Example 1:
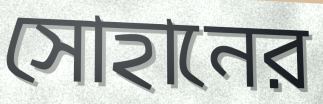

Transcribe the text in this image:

সোহানের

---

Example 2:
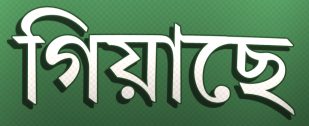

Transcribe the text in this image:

গিয়াছে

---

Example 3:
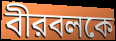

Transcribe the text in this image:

বীরবলকে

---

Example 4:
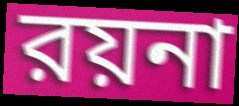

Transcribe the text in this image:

রয়না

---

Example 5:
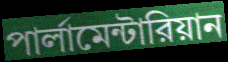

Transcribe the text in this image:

পার্লামেন্টারিয়ান